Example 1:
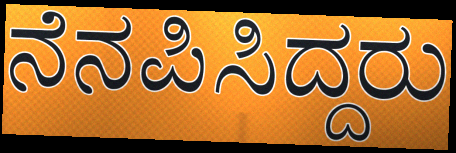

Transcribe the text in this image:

ನೆನಪಿಸಿದ್ದರು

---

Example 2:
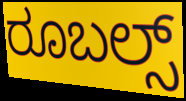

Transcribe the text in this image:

ರೂಬಲ್ಸ್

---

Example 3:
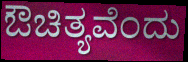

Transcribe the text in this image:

ಔಚಿತ್ಯವೆಂದು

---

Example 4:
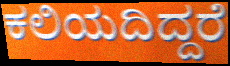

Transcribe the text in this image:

ಕಲಿಯದಿದ್ದರೆ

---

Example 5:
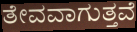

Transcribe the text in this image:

ತೇವವಾಗುತ್ತವೆ